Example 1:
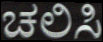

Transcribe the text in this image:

ಚಲಿಸಿ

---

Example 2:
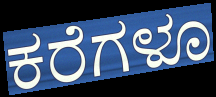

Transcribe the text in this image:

ಕರೆಗಳೂ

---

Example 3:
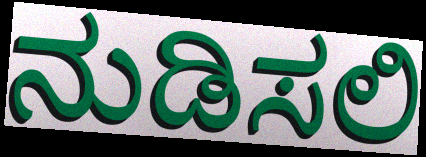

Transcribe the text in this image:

ನುಡಿಸಲಿ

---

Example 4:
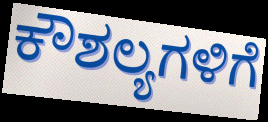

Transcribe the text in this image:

ಕೌಶಲ್ಯಗಳಿಗೆ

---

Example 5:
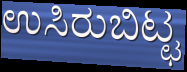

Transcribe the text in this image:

ಉಸಿರುಬಿಟ್ಟ